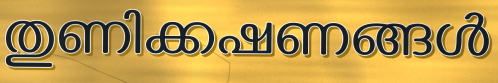
തുണിക്കഷണങ്ങൾ